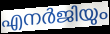
എനർജിയും